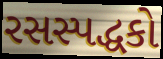
રસસ્પદ્ધકો